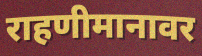
राहणीमानावर